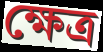
ক্ষেত্ৰ